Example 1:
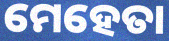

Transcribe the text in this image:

ମେହେତା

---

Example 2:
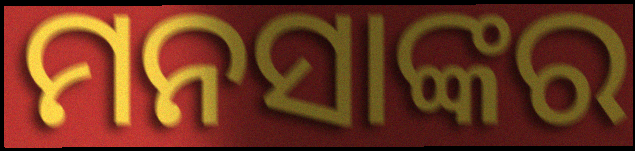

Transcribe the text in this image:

ମନସାଙ୍କର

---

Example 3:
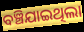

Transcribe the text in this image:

ବଞ୍ଚିଯାଇଥିଲା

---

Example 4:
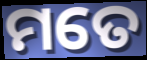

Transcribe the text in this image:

ମତେ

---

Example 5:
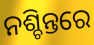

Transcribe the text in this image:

ନଶ୍ଚିନ୍ତରେ